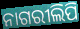
ନାଗରୀଲିପି